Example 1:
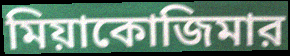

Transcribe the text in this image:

মিয়াকোজিমার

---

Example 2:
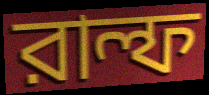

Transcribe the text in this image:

রাল্ফ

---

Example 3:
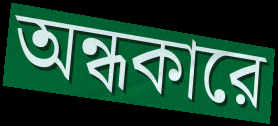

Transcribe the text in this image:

অন্ধকারে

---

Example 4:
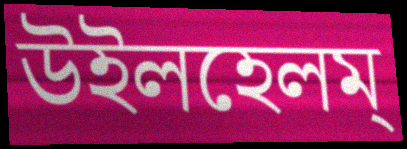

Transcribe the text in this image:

উইলহেলম্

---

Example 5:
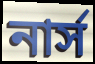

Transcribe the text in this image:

নার্স